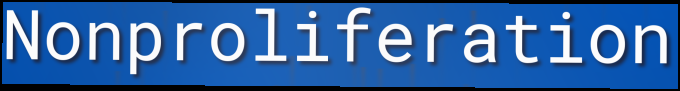
Nonproliferation